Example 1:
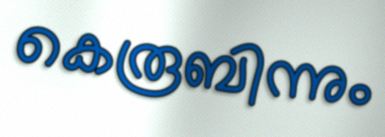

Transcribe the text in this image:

കെരൂബിന്നും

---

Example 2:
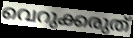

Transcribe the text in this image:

വെറുക്കരുത്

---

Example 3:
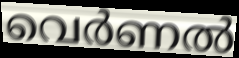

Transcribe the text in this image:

വെർണൽ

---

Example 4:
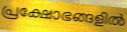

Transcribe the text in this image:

പ്രക്ഷോഭങ്ങളിൽ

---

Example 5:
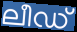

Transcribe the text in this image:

ലീഡ്